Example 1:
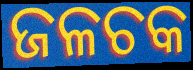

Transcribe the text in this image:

ଜଳଚକ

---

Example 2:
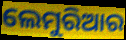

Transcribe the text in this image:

ଲେମୁରିଆର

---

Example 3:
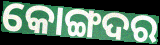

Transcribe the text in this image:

କୋଙ୍ଗଦର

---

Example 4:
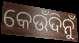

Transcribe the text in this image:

କେଉଁଦିନୁଁ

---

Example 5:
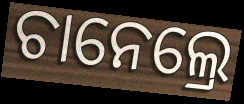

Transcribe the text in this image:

ଚାନେଲ୍ରେ